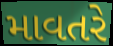
માવતરે